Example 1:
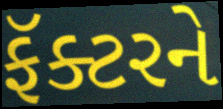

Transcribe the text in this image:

ફૅક્ટરને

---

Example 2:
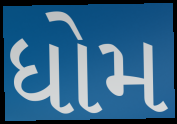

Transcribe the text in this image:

ધોમ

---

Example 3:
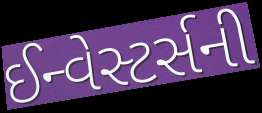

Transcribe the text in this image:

ઈન્વેસ્ટર્સની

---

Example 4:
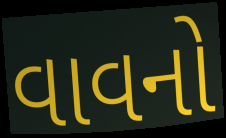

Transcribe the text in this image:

વાવનો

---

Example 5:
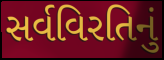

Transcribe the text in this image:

સર્વવિરતિનું